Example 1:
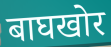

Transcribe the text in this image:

बाघखोर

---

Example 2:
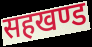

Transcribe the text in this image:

सहखण्ड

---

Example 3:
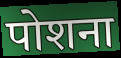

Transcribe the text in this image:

पोशना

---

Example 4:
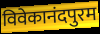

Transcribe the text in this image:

विवेकानंदपुरम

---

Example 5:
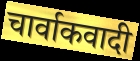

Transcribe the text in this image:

चार्वाकवादी